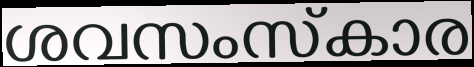
ശവസംസ്‌കാര